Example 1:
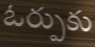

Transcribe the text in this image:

ఓర్పుకు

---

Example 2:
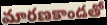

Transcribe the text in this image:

మారణకాండతో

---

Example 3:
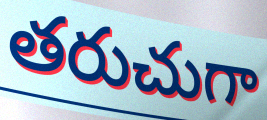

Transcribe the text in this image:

తరుచుగా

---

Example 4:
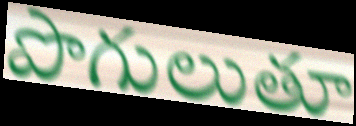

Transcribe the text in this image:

పొగులుతూ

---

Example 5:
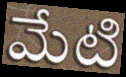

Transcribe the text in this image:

మేటి